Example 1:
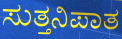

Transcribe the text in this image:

ಸುತ್ತನಿಪಾತ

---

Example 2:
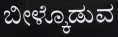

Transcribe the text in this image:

ಬೀಳ್ಕೊಡುವ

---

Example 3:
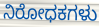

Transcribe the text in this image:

ನಿರೋಧಕಗಳು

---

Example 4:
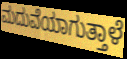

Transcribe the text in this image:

ಮದುವೆಯಾಗುತ್ತಾಳೆ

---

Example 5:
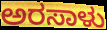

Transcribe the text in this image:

ಅರಸಾಳು